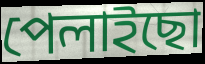
পেলাইছো